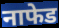
नाफेड